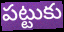
పట్టుకు